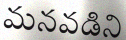
మనవడిని